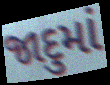
જાદુમાં